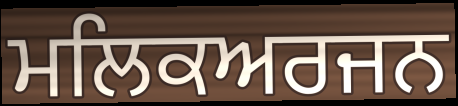
ਮਲਿਕਅਰਜਨ